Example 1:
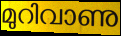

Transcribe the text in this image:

മുറിവാണു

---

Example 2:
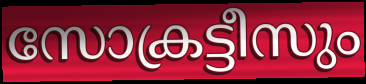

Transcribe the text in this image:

സോക്രട്ടീസും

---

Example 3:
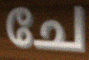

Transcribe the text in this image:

ചേ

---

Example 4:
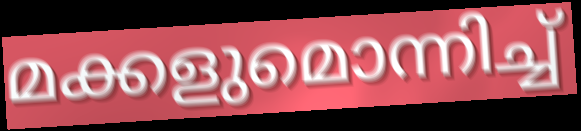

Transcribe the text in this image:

മക്കളുമൊന്നിച്ച്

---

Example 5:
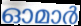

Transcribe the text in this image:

ഓമാർ